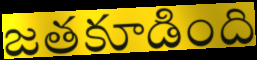
జతకూడింది